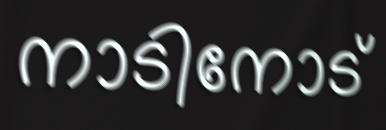
നാടിനോട്